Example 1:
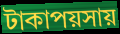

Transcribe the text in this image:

টাকাপয়সায়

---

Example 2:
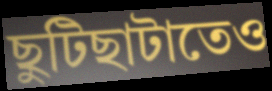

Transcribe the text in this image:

ছুটিছাটাতেও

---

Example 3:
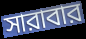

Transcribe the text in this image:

সারাবার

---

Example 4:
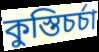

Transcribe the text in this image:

কুস্তিচর্চা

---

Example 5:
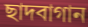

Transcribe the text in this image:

ছাদবাগান